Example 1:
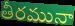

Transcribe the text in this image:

తీరమునా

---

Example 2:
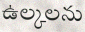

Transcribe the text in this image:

ఉల్కలను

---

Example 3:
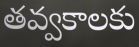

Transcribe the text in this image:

తవ్వకాలకు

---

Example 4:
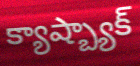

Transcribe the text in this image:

క్యాష్బ్యాక్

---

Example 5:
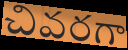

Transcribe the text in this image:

చివరగా